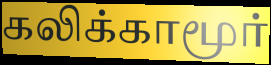
கலிக்காமூர்